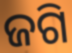
ଜଗି